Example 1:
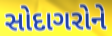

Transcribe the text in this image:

સોદાગરોને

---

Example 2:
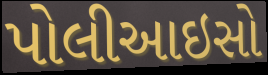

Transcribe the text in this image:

પોલીઆઇસો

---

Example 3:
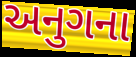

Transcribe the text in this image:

અનુગના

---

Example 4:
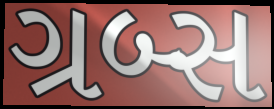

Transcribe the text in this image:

ગ્રબ્સ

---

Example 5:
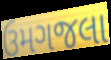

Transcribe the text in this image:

ઉમગજલા